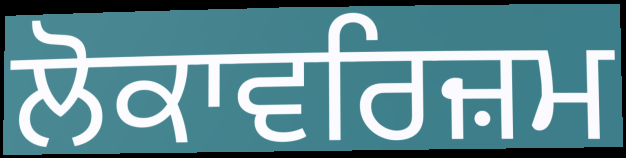
ਲੋਕਾਵਰਿਜ਼ਮ